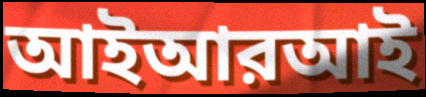
আইআরআই